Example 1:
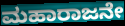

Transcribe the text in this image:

ಮಹಾರಾಜನೇ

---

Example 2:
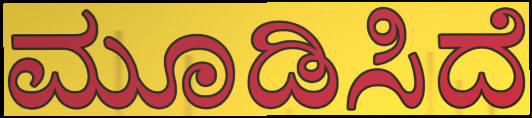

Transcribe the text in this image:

ಮೂಡಿಸಿದೆ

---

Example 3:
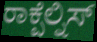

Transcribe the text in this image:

ರಾಕ್ಪೆಲ್ನಿಸ್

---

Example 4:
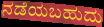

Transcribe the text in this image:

ನಡೆಯಬಹುದು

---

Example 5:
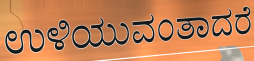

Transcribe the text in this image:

ಉಳಿಯುವಂತಾದರೆ